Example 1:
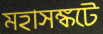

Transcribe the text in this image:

মহাসঙ্কটে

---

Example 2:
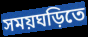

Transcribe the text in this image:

সময়ঘড়িতে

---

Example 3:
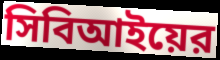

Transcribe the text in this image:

সিবিআইয়ের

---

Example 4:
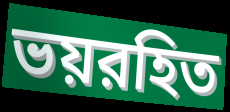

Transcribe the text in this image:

ভয়রহিত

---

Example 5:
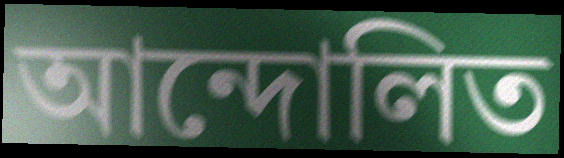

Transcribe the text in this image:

আন্দোলিত